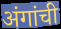
अंगांची